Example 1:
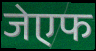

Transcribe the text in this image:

जेएफ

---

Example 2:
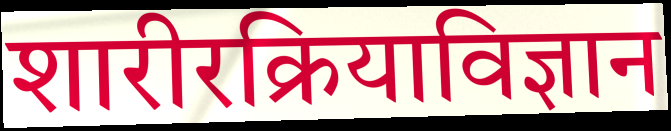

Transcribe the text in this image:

शारीरक्रियाविज्ञान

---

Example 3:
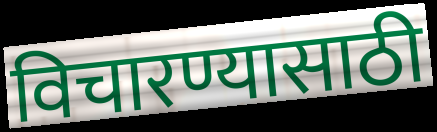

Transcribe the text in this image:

विचारण्यासाठी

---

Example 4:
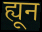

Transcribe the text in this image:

ह्यून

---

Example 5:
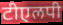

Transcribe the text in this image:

टीएलपी